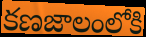
కణజాలంలోకి